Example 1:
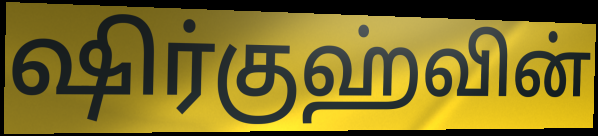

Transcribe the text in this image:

ஷிர்குஹ்வின்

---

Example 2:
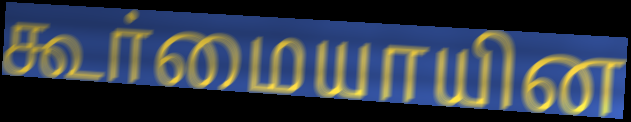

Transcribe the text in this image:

கூர்மையாயின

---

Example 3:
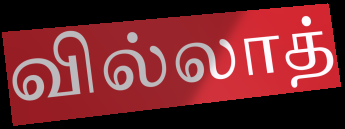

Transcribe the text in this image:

வில்லாத்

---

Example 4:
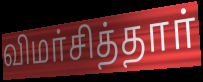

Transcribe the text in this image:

விமர்சித்தார்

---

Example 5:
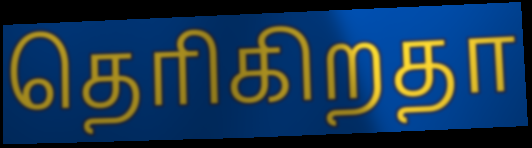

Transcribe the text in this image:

தெரிகிறதா